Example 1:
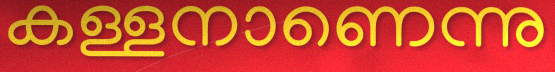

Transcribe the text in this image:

കള്ളനാണെന്നു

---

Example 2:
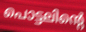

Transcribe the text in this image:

പൊട്ടലിന്റെ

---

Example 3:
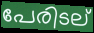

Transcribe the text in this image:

പേരിടല്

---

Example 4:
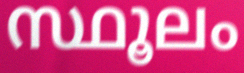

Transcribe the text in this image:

സ്ഥൂലം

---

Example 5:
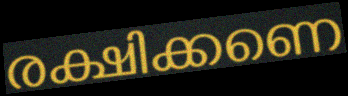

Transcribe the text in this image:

രക്ഷിക്കണെ